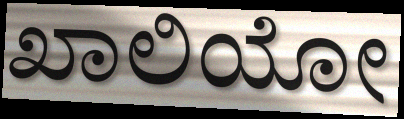
ಖಾಲಿಯೋ